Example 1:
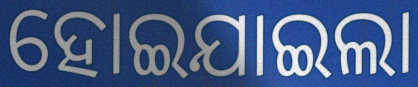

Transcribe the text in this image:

ହୋଇଯାଇଲା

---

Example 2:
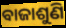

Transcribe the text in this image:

ବାଜାଶୁଣି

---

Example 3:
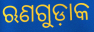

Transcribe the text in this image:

ଋଣଗୁଡ଼ାକ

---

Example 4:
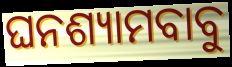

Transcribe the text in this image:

ଘନଶ୍ୟାମବାବୁ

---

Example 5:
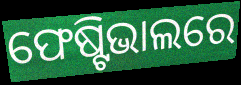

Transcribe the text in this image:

ଫେଷ୍ଟିଭାଲରେ